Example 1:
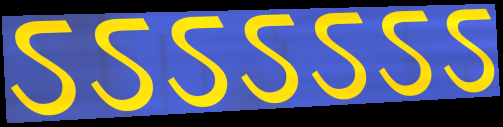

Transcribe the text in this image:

ऽऽऽऽऽऽऽ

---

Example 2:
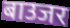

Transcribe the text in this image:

बाउजर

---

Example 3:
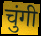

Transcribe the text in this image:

चुंगी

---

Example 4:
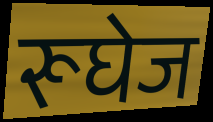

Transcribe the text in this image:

रूघेज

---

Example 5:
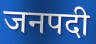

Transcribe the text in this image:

जनपदी